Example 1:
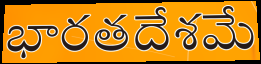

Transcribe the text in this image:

భారతదేశమే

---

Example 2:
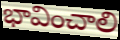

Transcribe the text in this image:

భావించాలి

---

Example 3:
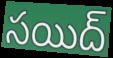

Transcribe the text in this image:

సయిద్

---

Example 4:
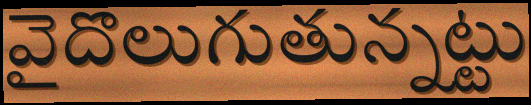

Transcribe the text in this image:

వైదొలుగుతున్నట్టు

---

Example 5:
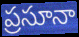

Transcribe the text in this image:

ప్రసూనా